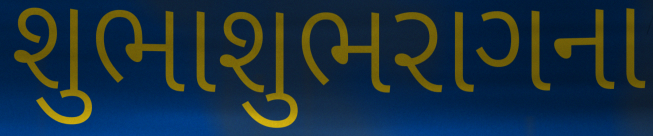
શુભાશુભરાગના